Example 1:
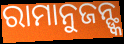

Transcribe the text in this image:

ରାମାନୁଜନ୍ଙ୍କ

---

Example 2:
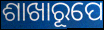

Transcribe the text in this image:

ଶାଖାରୂପେ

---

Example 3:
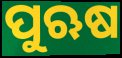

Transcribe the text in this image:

ପୁଋଷ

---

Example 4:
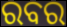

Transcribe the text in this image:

ରବର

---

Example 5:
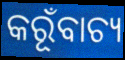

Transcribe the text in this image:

କରୂଁବାଚ୍ୟ